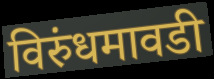
विरुंधमावडी